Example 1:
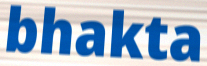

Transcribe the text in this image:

bhakta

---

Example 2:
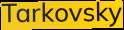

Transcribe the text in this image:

Tarkovsky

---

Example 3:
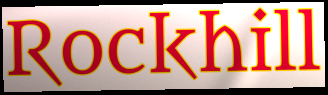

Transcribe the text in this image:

Rockhill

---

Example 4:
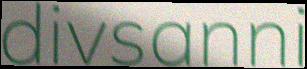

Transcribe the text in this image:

divsanni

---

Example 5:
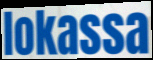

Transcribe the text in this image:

lokassa